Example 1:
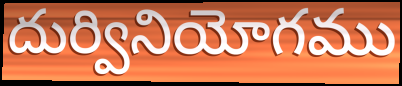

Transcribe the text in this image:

దుర్వినియోగము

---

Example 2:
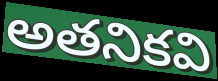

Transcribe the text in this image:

అతనికవి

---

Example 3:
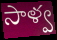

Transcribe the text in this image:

సాళ్వ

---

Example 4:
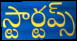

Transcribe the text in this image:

స్టార్టప్స్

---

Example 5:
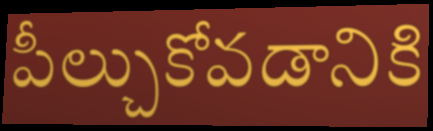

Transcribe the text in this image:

పీల్చుకోవడానికి